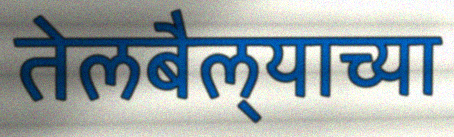
तेलबैल्याच्या